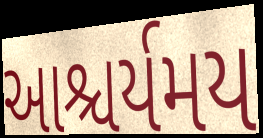
આશ્ચર્યમય